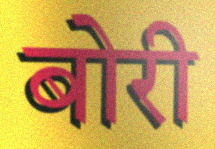
बोरी